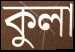
কুলা